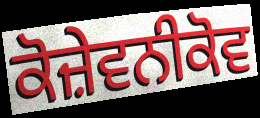
ਕੋਜ਼ੇਵਨੀਕੋਵ